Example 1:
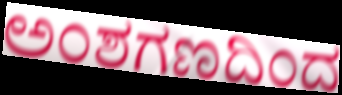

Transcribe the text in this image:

ಅಂಶಗಣದಿಂದ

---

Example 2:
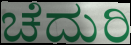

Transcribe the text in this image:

ಚೆದುರಿ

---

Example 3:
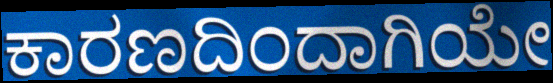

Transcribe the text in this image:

ಕಾರಣದಿಂದಾಗಿಯೇ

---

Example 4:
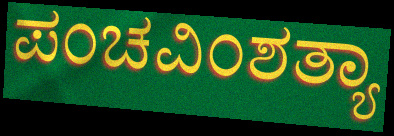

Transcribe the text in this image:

ಪಂಚವಿಂಶತ್ಯಾ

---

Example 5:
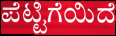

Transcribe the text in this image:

ಪೆಟ್ಟಿಗೆಯಿದೆ